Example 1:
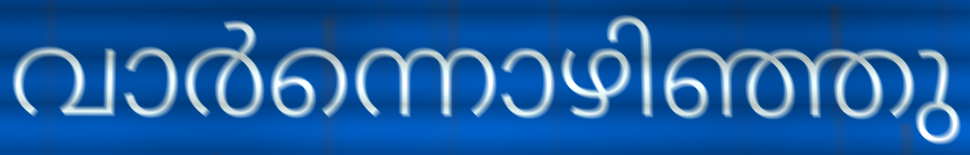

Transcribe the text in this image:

വാർന്നൊഴിഞ്ഞു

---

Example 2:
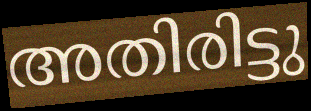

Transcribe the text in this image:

അതിരിട്ടു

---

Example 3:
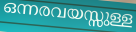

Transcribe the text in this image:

ഒന്നരവയസ്സുള്ള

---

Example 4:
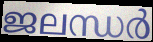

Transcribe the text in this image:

ജലന്ധർ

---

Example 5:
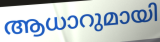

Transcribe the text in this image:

ആധാറുമായി